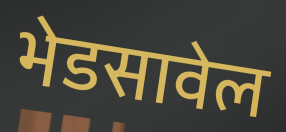
भेडसावेल